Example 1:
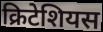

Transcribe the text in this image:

क्रिटेशियस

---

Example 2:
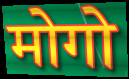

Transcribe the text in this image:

मोगो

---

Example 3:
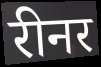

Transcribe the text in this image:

रीनर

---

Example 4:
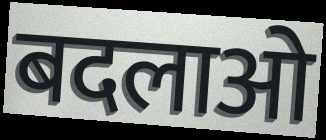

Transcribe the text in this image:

बदलाओ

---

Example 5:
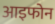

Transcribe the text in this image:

आइफोन